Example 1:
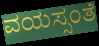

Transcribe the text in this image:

ವಯಸ್ಸಂತೆ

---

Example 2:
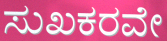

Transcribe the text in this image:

ಸುಖಕರವೇ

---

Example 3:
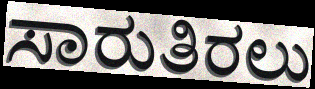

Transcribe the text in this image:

ಸಾರುತಿರಲು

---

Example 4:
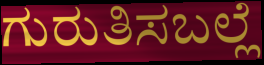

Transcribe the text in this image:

ಗುರುತಿಸಬಲ್ಲೆ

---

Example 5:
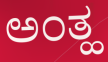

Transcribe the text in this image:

ಅಂತ್ಹ